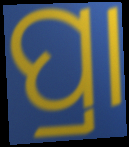
ପ୍ରା